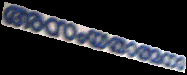
അസംയതാത്മനാ